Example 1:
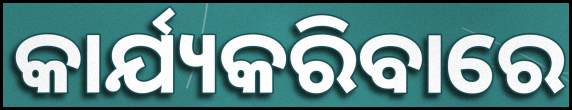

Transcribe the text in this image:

କାର୍ଯ୍ୟକରିବାରେ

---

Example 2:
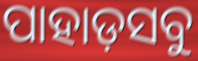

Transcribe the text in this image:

ପାହାଡ଼ସବୁ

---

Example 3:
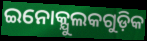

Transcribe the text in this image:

ଇନୋକ୍ଯୁଲକଗୁଡ଼ିକ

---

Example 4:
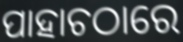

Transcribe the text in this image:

ପାହାଚଠାରେ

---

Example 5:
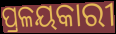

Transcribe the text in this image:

ପ୍ରଳୟକାରୀ